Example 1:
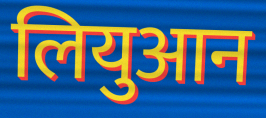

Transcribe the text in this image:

लियुआन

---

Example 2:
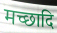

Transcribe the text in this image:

मच्छादि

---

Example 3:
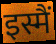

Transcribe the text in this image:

इस्मैं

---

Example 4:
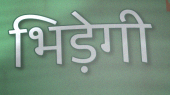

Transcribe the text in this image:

भिड़ेगी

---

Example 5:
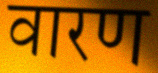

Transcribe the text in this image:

वारण